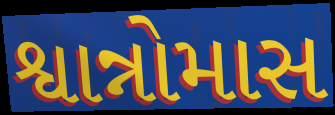
શ્વાન્નોમાસ